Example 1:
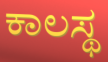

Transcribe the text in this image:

ಕಾಲಸ್ಥ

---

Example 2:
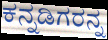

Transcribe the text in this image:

ಕನ್ನಡಿಗರನ್ನ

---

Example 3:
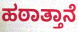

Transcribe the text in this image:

ಹಠಾತ್ತಾನೆ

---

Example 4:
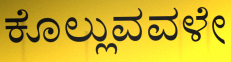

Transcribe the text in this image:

ಕೊಲ್ಲುವವಳೇ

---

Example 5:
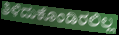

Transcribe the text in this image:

ತಿಳಿದುಕೊಂಡಿರಲಿಲ್ಲ